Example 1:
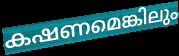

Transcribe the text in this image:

കഷണമെങ്കിലും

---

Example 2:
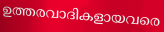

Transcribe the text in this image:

ഉത്തരവാദികളായവരെ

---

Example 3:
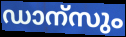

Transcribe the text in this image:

ഡാന്സും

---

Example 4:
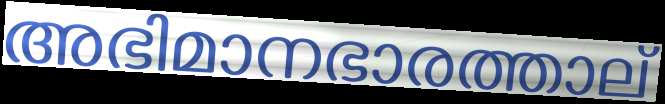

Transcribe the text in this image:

അഭിമാനഭാരത്താല്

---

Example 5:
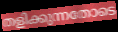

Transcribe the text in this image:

തളിക്കുന്നതോടെ